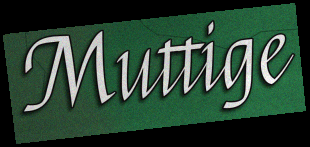
Muttige